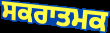
ਸਕਰਾਤਮਕ